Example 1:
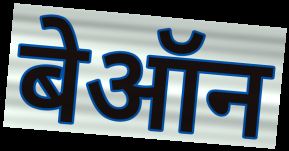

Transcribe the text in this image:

बेऑन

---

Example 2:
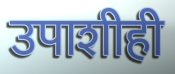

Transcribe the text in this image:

उपाशीही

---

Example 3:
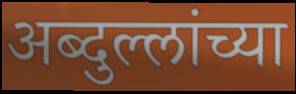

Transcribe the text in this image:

अब्दुल्लांच्या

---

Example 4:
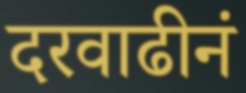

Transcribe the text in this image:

दरवाढीनं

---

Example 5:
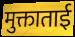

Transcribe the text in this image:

मुक्ताताई